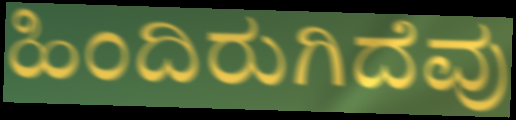
ಹಿಂದಿರುಗಿದೆವು